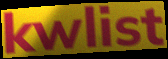
kwlist